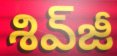
శివ్‌జీ